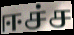
ஈச்ச